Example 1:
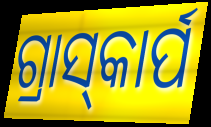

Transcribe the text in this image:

ଗ୍ରାସ୍‌କାର୍ପ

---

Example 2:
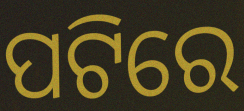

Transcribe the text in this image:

ପଟିରେ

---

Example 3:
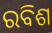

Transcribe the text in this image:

ରବିଶ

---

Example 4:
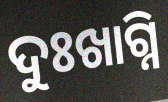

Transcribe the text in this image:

ଦୁଃଖାଗ୍ନି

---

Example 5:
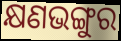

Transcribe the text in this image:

କ୍ଷଣଭଙ୍ଗୁର